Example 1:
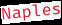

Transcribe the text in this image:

Naples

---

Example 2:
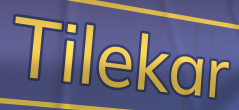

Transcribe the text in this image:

Tilekar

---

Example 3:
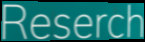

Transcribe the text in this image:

Reserch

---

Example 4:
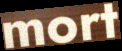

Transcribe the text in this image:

mort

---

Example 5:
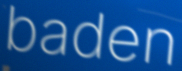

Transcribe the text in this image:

baden